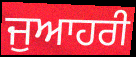
ਜੁਆਹਰੀ